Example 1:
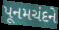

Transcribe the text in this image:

પૂનમચંદને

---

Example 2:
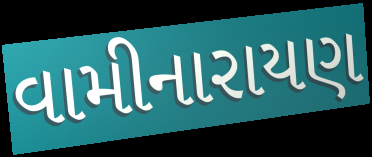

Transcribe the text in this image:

વામીનારાયણ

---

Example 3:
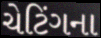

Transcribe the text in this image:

ચેટિંગના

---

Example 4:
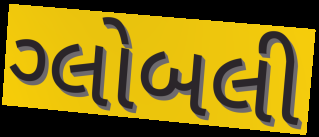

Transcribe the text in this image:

ગ્લોબલી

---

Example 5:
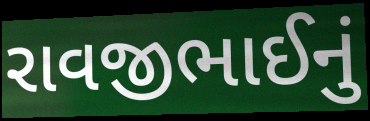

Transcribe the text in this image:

રાવજીભાઈનું